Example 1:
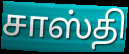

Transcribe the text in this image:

சாஸ்தி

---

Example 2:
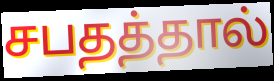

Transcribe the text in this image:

சபதத்தால்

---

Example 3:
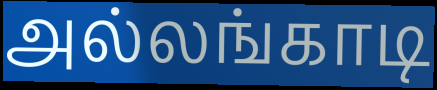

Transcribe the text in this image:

அல்லங்காடி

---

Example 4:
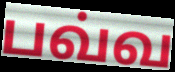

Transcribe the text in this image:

பவ்வ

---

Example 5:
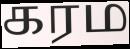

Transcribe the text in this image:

கரம